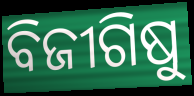
ବିଜୀଗିଷୁ